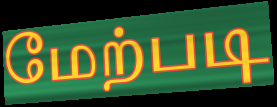
மேற்படி